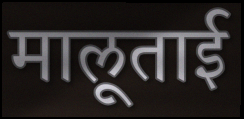
मालूताई